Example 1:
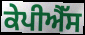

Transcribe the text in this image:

ਕੇਪੀਐੱਸ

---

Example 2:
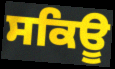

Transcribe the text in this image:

ਸਕਿਊ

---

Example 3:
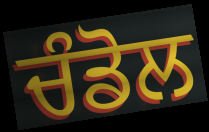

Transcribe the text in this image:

ਚੰਡੋਲ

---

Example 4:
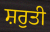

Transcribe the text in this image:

ਸ਼ਰੁਤੀ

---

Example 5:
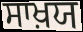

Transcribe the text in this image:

ਸਾਖ਼ਯ